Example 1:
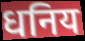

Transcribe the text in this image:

धनिय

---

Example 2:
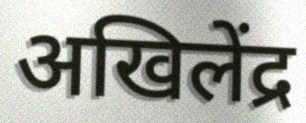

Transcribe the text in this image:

अखिलेंद्र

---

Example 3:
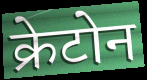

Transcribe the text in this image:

क्रेटोन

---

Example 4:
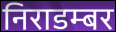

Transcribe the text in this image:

निराडम्बर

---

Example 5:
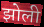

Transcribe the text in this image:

झोली